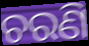
ଚରଣି